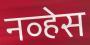
नव्हेस